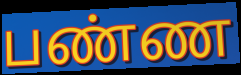
பண்ண